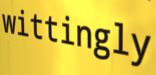
wittingly